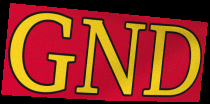
GND